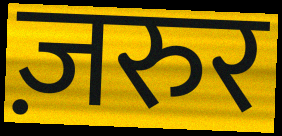
ज़रुर